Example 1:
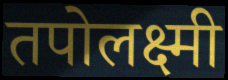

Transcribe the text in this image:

तपोलक्ष्मी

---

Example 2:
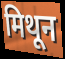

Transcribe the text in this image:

मिथून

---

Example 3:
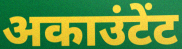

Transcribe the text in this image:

अकाउंटेंट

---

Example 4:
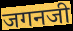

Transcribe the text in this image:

जगनजी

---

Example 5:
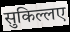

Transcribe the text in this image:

सुकिल्लए